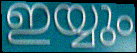
ഇയ്യും